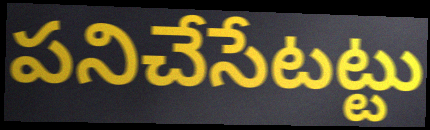
పనిచేసేటట్టు